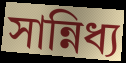
সান্নিধ্য